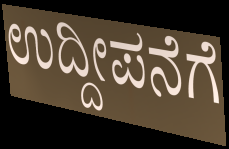
ಉದ್ದೀಪನೆಗೆ